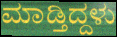
ಮಾಡ್ತಿದ್ದಳು